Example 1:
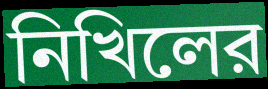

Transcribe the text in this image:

নিখিলের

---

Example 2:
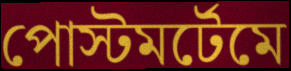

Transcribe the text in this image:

পোস্টমর্টেমে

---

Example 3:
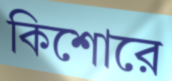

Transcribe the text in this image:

কিশোরে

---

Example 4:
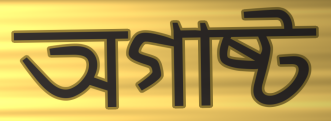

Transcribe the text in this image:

অগাষ্ট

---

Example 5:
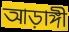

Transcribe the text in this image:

আড়াঙ্গী